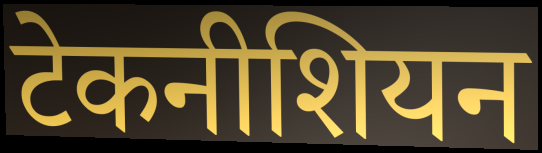
टेकनीशियन